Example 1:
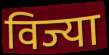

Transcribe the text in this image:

विज्या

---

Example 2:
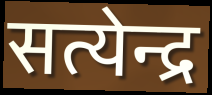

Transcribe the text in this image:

सत्येन्द्र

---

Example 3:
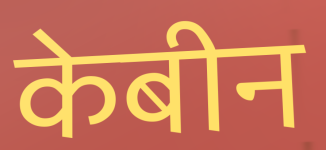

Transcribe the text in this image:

केबीन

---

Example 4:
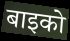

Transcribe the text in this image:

बाइको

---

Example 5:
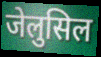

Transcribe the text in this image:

जेलुसिल